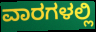
ವಾರಗಳಲ್ಲಿ